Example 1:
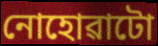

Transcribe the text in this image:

নোহোৱাটো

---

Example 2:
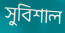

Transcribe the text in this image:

সুবিশাল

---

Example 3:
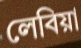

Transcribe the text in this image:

লেবিয়া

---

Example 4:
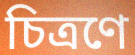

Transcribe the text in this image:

চিত্ৰণে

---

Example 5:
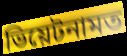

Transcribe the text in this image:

ভিয়েটনামত